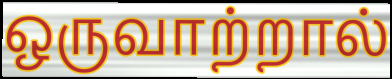
ஒருவாற்றால்